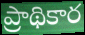
ప్రాథికార